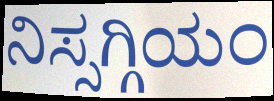
ನಿಸ್ಸಗ್ಗಿಯಂ